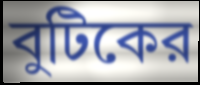
বুটিকের